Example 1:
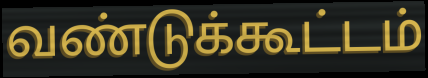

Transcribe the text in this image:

வண்டுக்கூட்டம்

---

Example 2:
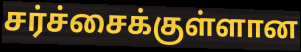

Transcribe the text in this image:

சர்ச்சைக்குள்ளான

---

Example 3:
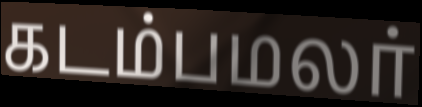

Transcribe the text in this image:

கடம்பமலர்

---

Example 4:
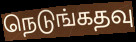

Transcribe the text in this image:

நெடுங்கதவு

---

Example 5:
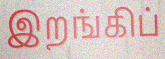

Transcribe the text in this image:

இறங்கிப்